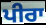
ਪੀਰਾ